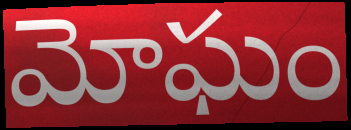
మోఘం